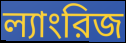
ল্যাংরিজ